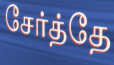
சேர்த்தே